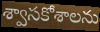
శ్వాసకోశాలను